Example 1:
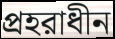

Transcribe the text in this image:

প্রহরাধীন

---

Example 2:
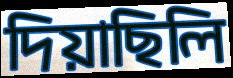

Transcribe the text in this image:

দিয়াছিলি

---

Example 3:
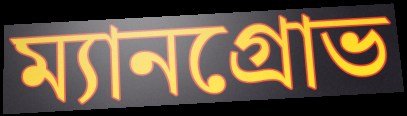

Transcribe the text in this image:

ম্যানগ্রোভ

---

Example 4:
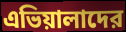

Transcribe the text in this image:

এভিয়ালাদের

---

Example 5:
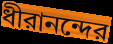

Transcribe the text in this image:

ধীরানন্দের